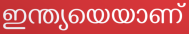
ഇന്ത്യയെയാണ്